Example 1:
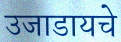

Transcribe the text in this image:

उजाडायचे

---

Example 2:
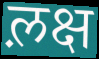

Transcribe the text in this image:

ल़क्ष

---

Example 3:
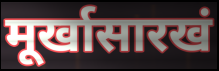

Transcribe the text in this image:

मूर्खासारखं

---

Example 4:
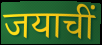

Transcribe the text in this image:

जयाचीं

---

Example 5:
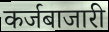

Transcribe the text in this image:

कर्जबाजारी